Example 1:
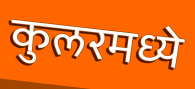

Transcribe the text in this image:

कुलरमध्ये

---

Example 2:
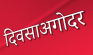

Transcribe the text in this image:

दिवसाअगोदर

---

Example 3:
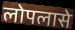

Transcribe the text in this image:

लोपलासे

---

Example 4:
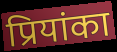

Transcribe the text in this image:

प्रियांका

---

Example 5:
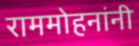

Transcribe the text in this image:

राममोहनांनी